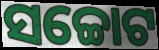
ସଚ୍ଚୋଟ